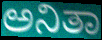
ಅನಿತಾ